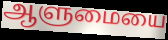
ஆளுமையை